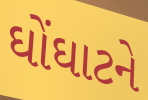
ઘોંઘાટને